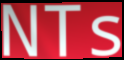
NTs